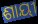
ଶାୟୀ